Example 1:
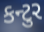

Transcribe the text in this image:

કન્ટુર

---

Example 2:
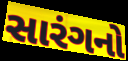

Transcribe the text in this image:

સારંગનો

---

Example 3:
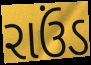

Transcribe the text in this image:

રાઉંડ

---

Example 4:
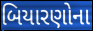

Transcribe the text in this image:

બિયારણોના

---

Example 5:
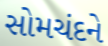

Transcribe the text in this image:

સોમચંદને